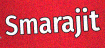
Smarajit